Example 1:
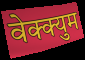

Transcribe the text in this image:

वेक्क्युम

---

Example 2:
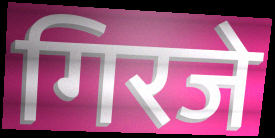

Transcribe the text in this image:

गिरजे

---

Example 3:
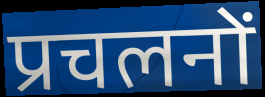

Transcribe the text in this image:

प्रचलनों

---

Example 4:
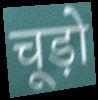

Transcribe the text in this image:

चूड़ो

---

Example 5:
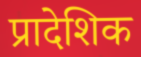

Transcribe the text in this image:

प्रादेशिक